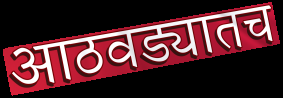
आठवड्यातच